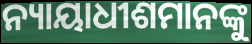
ନ୍ୟାୟାଧୀଶମାନଙ୍କୁ